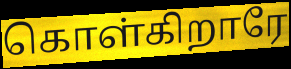
கொள்கிறாரே